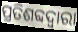
ପ୍ରତିଶବ୍ଦଦ୍ୱାରା